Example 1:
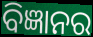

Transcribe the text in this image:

ବିଜ୍ଞାନର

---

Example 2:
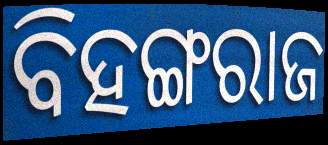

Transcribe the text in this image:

ବିହଙ୍ଗରାଜ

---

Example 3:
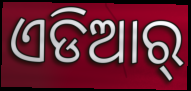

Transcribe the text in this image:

ଏଡିଆର୍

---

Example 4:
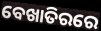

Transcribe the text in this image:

ବେଖାତିରରେ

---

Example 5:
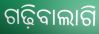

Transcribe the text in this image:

ଗଢ଼ିବାଲାଗି